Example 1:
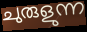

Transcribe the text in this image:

ചുരുളുന്ന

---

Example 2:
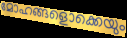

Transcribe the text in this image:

മോഹങ്ങളൊക്കെയും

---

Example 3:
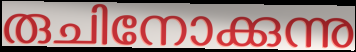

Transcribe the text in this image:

രുചിനോക്കുന്നു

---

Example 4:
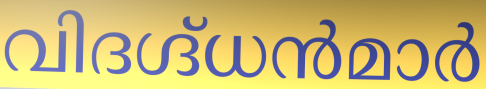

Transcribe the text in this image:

വിദഗ്ദ്ധൻമാർ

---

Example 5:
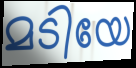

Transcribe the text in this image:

മടിയേ